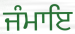
ਜੰਮਾਇ